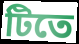
টিতে